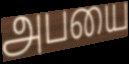
அபயை